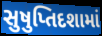
સુષુપ્તિદશામાં